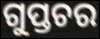
ଗୁପ୍ତଚର